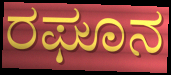
ರಘೂನ